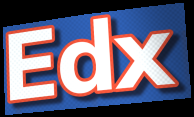
Edx